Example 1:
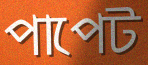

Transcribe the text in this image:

পাপেট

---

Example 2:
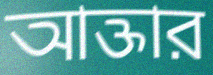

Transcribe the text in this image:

আক্তার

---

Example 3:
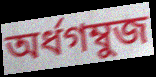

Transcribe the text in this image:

অর্ধগম্বুজ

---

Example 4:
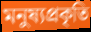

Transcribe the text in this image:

মনুষ্যপ্রকৃতি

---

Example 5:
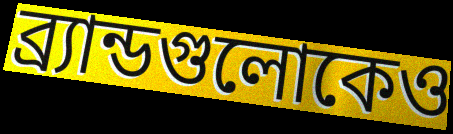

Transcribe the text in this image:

ব্র্যান্ডগুলোকেও